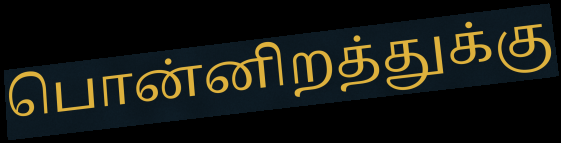
பொன்னிறத்துக்கு